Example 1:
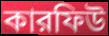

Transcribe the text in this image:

কারফিউ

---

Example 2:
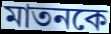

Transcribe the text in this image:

মাতনকে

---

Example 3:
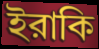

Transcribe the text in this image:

ইরাকি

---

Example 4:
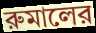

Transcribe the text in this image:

রুমালের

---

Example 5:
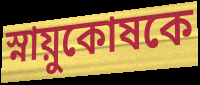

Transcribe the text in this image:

স্নায়ুকোষকে